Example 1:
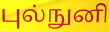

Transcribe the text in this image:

புல்நுனி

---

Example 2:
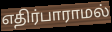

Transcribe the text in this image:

எதிர்பாராமல்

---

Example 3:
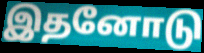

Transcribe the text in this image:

இதனோடு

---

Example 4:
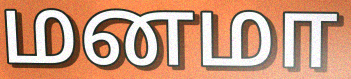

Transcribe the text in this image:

மனமா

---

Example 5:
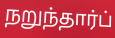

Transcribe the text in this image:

நறுந்தார்ப்